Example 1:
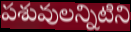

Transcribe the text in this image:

పశువులన్నిటిని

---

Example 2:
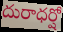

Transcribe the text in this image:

దురాధర్షో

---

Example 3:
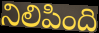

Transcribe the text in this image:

నిలిపింది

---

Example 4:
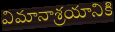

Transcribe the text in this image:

విమానాశ్రయానికి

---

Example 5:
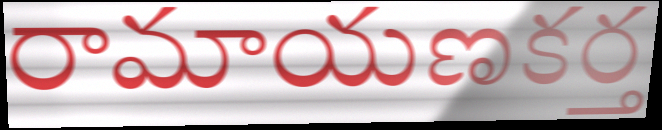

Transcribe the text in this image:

రామాయణకర్త